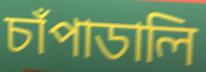
চাঁপাডালি